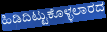
ಹಿಡಿದಿಟ್ಟುಕೊಳ್ಳಲಾರದ